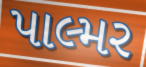
પાલ્મર